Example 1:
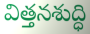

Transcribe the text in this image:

విత్తనశుద్ధి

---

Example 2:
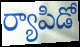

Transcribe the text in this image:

ర్యాపిడో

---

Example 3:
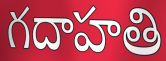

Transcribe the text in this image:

గదాహతి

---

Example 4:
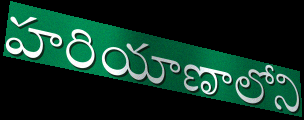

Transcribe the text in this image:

హరియాణాలోని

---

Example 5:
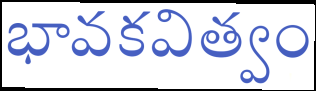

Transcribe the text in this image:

భావకవిత్వం